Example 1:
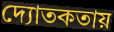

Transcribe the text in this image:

দ্যোতকতায়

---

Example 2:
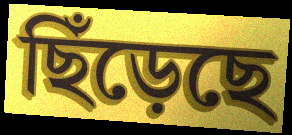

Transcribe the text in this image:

ছিঁড়েছে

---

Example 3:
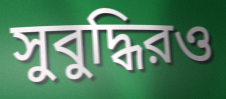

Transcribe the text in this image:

সুবুদ্ধিরও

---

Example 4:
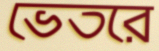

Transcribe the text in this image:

ভেতরে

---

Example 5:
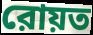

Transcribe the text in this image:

রোয়ত